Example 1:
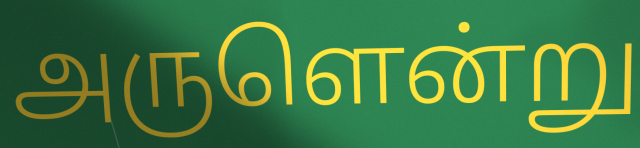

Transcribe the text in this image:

அருளென்று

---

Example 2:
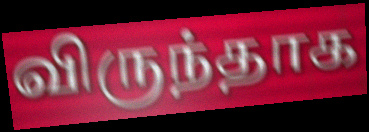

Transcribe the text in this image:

விருந்தாக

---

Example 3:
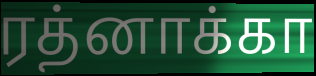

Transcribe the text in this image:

ரத்னாக்கா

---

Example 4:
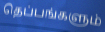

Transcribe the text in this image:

தெப்பங்களும்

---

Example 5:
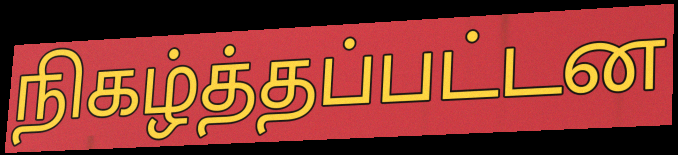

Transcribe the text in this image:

நிகழ்த்தப்பட்டன